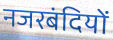
नजरबंदियों